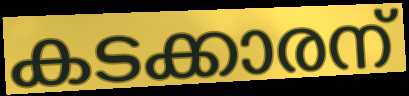
കടക്കാരന്